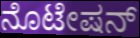
ನೊಟೇಷನ್